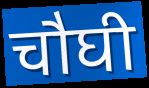
चौघी